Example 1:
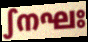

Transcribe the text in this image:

ഽനഘഃ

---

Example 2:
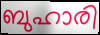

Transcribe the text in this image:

ബുഹാരി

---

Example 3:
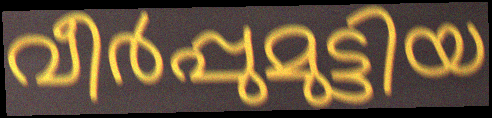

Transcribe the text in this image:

വീർപ്പുമുട്ടിയ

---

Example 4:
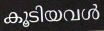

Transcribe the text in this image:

കൂടിയവൾ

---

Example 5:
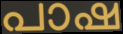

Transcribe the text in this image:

പാഷ